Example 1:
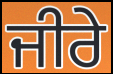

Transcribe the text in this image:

ਜੀਰੇ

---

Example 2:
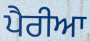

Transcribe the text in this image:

ਪੈਰੀਆ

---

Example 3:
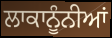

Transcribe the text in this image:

ਲਾਕਾਨੂੰਨੀਆਂ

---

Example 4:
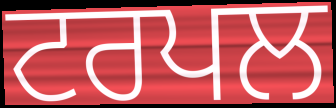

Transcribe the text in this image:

ਟਰਪਲ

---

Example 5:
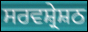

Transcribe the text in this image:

ਸਰਵਸ਼੍ਰੇਸ਼ਠ